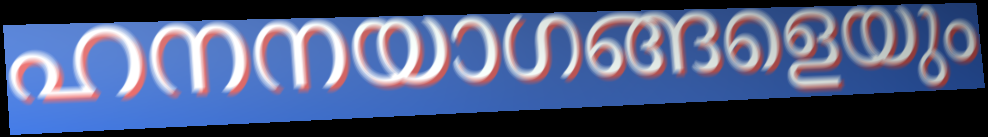
ഹനനയാഗങ്ങളെയും